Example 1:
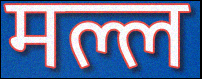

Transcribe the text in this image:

मल्ल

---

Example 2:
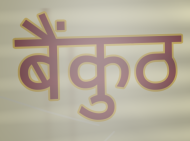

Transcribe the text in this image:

बैंकुठ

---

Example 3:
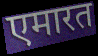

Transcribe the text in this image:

एमारत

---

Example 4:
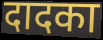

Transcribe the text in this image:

दादका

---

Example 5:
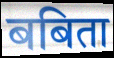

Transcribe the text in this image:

बबिता